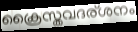
ക്രൈസ്തവദര്ശനം